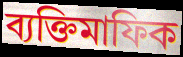
ব্যক্তিমাফিক